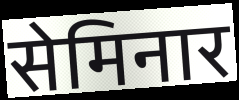
सेमिनार